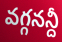
వగ్గనన్దీ